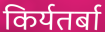
किर्यतर्बा